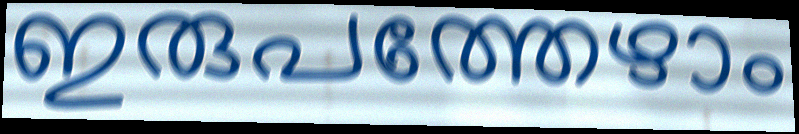
ഇരുപത്തേഴാം